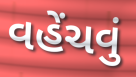
વહેંચવું